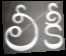
లీకీ